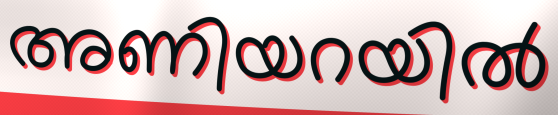
അണിയറയിൽ